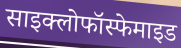
साइक्लोफॉस्फेमाइड